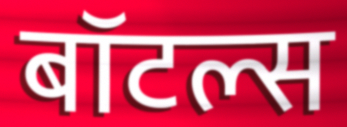
बॉटल्स